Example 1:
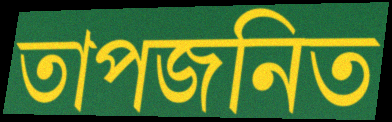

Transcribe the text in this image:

তাপজনিত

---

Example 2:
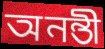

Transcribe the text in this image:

অনন্তী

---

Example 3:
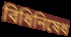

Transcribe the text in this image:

বিধিনিষেধ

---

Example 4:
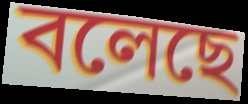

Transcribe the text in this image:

বলেছে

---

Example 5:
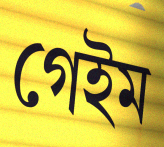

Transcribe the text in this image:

গেইম